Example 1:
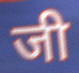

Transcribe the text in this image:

जी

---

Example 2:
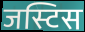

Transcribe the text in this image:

जस्टिस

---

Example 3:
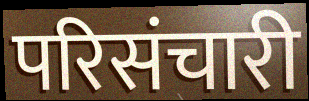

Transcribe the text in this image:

परिसंचारी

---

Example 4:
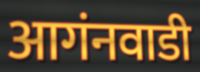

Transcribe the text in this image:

आगंनवाडी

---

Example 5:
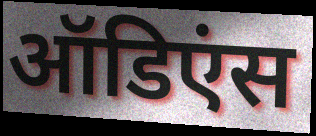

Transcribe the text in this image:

ऑडिएंस